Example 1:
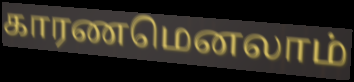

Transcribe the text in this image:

காரணமெனலாம்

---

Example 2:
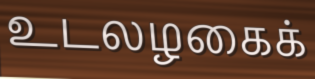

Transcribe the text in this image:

உடலழகைக்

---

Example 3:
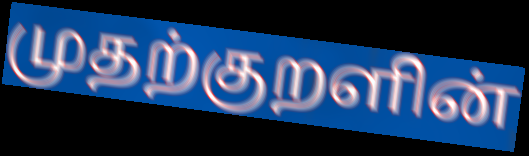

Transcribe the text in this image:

முதற்குறளின்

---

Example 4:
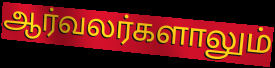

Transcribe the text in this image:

ஆர்வலர்களாலும்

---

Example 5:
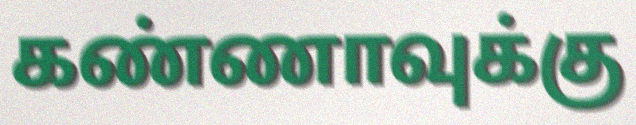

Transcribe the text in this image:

கண்ணாவுக்கு